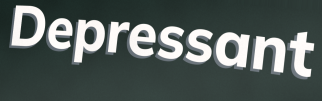
Depressant